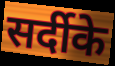
सर्दीके